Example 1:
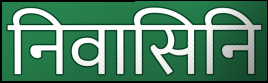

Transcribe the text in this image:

निवासिनि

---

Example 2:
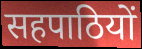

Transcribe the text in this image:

सहपाठियों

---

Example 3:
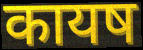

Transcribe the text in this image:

कायष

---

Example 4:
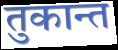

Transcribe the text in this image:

तुकान्त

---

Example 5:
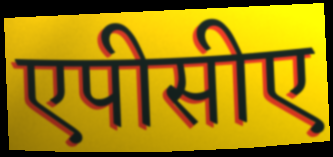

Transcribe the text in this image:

एपीसीए